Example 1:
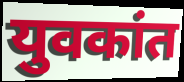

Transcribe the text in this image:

युवकांत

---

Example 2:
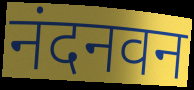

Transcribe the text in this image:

नंदनवन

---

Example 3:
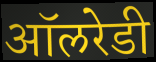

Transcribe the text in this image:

ऑलरेडी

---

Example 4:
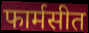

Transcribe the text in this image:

फार्मसीत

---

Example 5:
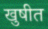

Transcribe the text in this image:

खुषीत